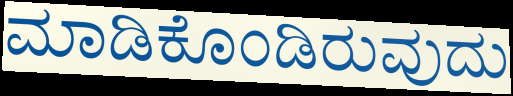
ಮಾಡಿಕೊಂಡಿರುವುದು